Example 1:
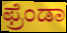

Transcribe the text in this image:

ಫ್ರೆಂಡಾ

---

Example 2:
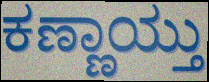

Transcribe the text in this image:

ಕಣ್ಣಾಯ್ತು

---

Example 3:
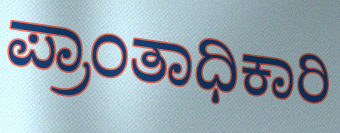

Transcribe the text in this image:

ಪ್ರಾಂತಾಧಿಕಾರಿ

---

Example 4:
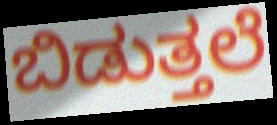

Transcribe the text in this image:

ಬಿಡುತ್ತಲೆ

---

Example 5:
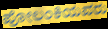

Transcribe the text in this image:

ಪೋಲಂಕಿಯವರು